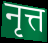
नृत्त